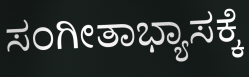
ಸಂಗೀತಾಭ್ಯಾಸಕ್ಕೆ